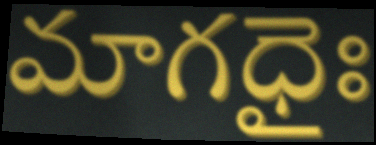
మాగధైః